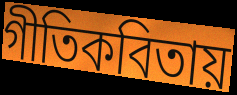
গীতিকবিতায়